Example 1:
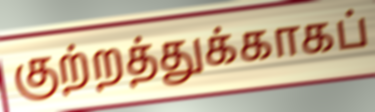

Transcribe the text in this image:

குற்றத்துக்காகப்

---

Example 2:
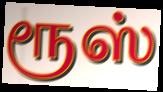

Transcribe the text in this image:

ரூஸ்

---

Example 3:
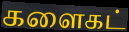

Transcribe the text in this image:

களைகட்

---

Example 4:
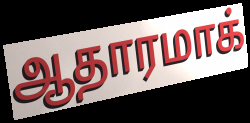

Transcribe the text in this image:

ஆதாரமாக்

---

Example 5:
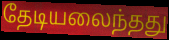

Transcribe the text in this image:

தேடியலைந்தது